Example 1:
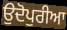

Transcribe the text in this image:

ਉਦੋਪੁਰੀਆ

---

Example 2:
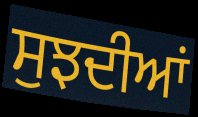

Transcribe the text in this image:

ਸੁਝਦੀਆਂ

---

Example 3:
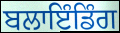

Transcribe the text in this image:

ਬਲਾਇੰਡਿੰਗ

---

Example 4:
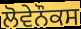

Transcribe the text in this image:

ਲੋਵੇਨੌਕਸ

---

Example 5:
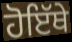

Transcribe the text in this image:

ਹੋਇੱਥੇ